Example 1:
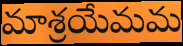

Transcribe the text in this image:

మాశ్రయేమమ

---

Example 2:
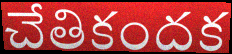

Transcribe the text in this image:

చేతికందక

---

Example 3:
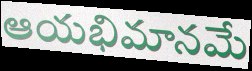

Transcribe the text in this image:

ఆయభిమానమే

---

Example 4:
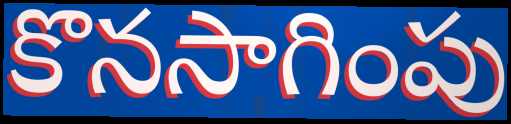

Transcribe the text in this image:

కొనసాగింపు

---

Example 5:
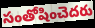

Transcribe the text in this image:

సంతోషించెదరు